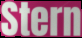
Stern